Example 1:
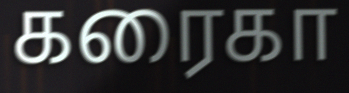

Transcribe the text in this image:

கரைகா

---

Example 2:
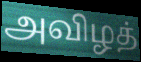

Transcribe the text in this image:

அவிழத்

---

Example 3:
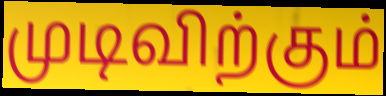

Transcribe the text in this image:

முடிவிற்கும்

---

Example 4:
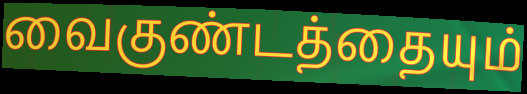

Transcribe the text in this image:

வைகுண்டத்தையும்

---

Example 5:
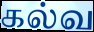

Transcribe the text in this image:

கல்வ